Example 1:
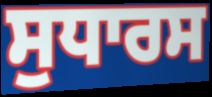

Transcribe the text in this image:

ਸੁਧਾਰਸ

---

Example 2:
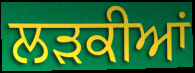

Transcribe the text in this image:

ਲੜਕੀਆਂ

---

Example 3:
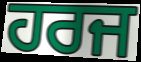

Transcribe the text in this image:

ਹਰਜ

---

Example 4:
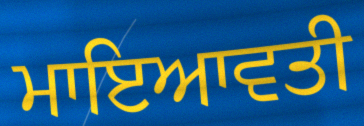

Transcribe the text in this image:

ਮਾਇਆਵਤੀ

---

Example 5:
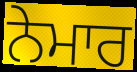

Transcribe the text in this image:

ਨੇਮਾਰ